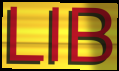
LIB